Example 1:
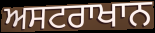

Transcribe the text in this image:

ਅਸਟਰਾਖਾਨ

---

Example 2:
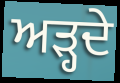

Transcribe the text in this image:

ਅੜ੍ਹਦੇ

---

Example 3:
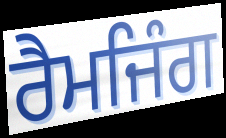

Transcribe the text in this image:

ਰੈਮਜਿੰਗ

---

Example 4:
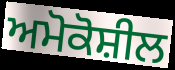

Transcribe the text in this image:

ਅਮੋਕੋਸ਼ੀਲ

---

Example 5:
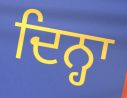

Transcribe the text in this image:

ਦਿਨ੍ਹਾ